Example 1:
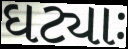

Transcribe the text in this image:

ઘટ્યાઃ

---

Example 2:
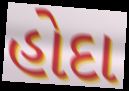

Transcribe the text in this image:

હોદા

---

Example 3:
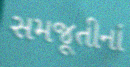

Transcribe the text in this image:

સમજૂતીનાં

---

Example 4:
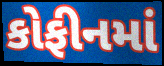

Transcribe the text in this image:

કોફીનમાં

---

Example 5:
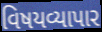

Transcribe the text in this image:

વિષયવ્યાપાર